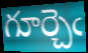
గూర్చెఁ